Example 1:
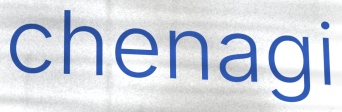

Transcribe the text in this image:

chenagi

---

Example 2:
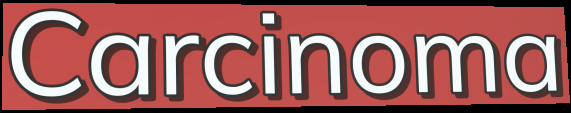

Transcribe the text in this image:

Carcinoma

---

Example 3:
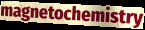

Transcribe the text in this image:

magnetochemistry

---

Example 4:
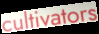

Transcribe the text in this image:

cultivators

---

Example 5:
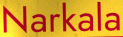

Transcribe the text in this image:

Narkala